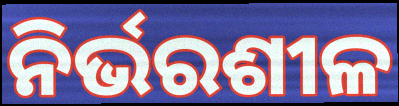
ନିର୍ଭରଶୀଳ